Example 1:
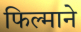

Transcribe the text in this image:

फिल्‍माने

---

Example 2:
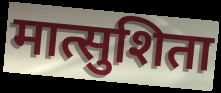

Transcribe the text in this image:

मात्सुशिता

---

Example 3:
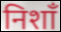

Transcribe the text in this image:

निशाँ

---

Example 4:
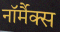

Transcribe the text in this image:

नॉर्मैक्स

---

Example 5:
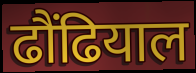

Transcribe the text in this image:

ढौंढियाल